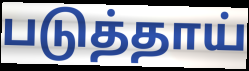
படுத்தாய்